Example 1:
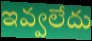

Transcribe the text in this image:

ఇవ్వలేదు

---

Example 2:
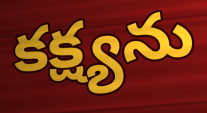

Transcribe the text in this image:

కక్ష్యను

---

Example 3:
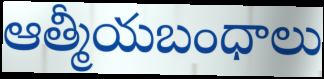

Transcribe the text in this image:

ఆత్మీయబంధాలు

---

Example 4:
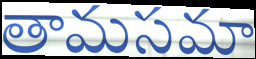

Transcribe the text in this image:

తామసమా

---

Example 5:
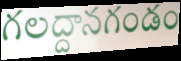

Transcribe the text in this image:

గలద్దానగండం